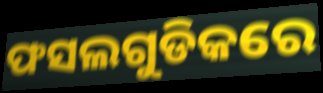
ଫସଲଗୁଡିକରେ